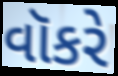
વૉકરે